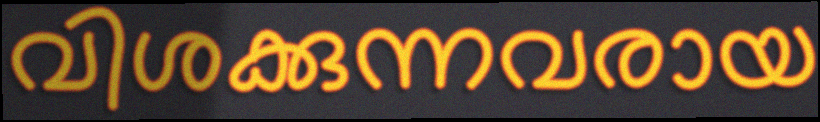
വിശക്കുന്നവരായ